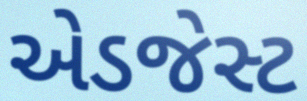
એડજેસ્ટ